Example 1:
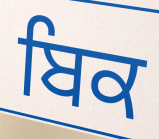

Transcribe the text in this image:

ਬਿਕ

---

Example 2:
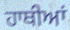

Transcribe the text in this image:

ਹਾਥੀਆਂ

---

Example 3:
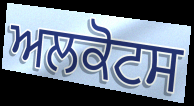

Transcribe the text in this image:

ਅਲਕੋਟਸ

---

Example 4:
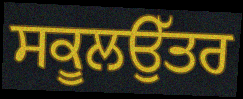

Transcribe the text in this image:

ਸਕੂਲਉੱਤਰ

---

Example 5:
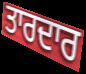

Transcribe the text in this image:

ਤਾਰਦਾਰ